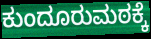
ಕುಂದೂರುಮಠಕ್ಕೆ